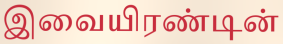
இவையிரண்டின்